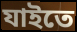
যাইতে